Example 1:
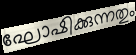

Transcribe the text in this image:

ഘോഷിക്കുന്നതും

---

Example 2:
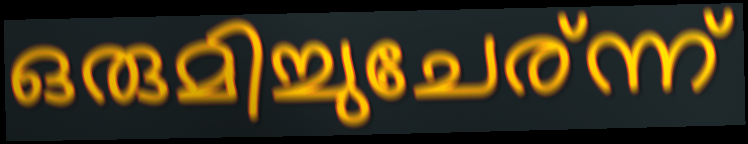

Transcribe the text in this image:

ഒരുമിച്ചുചേര്ന്ന്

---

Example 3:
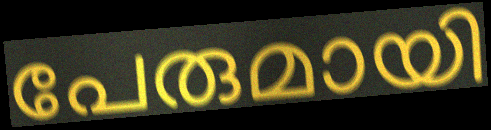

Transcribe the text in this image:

പേരുമായി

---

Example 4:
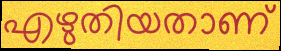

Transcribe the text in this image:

എഴുതിയതാണ്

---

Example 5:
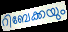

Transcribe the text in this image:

റിബേക്കയും